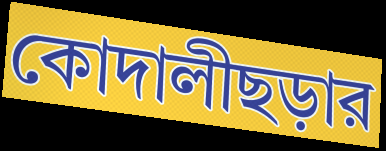
কোদালীছড়ার